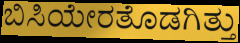
ಬಿಸಿಯೇರತೊಡಗಿತ್ತು